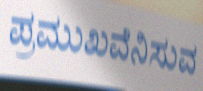
ಪ್ರಮುಖವೆನಿಸುವ